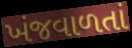
ખંજવાળતાં